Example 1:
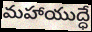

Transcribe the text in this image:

మహాయుద్ధే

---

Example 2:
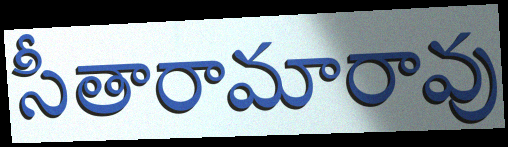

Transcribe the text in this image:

సీతారామారావు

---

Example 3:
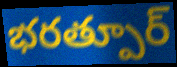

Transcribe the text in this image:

భరత్పూర్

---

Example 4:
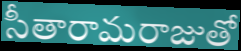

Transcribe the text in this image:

సీతారామరాజుతో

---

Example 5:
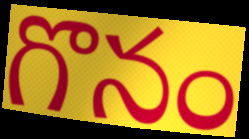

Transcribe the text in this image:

గొనం